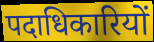
पदाधिकारियों